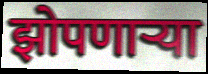
झोपणार्‍या